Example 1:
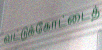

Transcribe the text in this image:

வட்டுக்கோட்டைத்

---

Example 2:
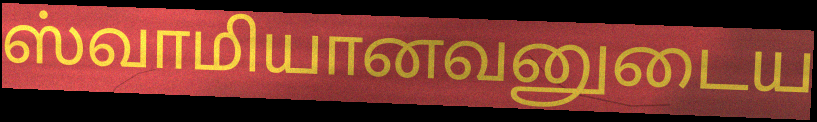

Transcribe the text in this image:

ஸ்வாமியானவனுடைய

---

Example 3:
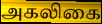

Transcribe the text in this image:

அகலிகை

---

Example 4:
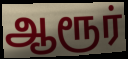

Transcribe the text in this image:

ஆரூர்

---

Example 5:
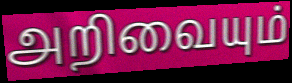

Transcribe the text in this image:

அறிவையும்